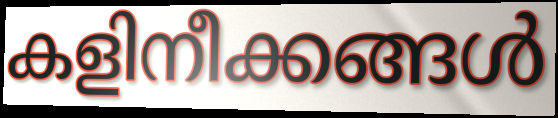
കളിനീക്കങ്ങൾ